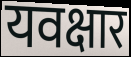
यवक्षार